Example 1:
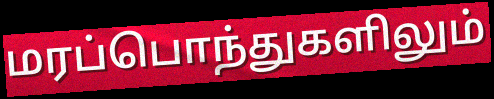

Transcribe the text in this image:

மரப்பொந்துகளிலும்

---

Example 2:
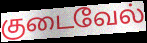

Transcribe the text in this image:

குடைவேல்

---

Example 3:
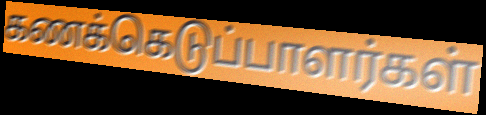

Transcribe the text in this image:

கணக்கெடுப்பாளர்கள்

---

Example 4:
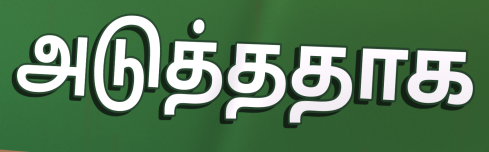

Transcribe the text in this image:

அடுத்ததாக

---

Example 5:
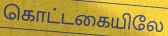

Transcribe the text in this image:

கொட்டகையிலே